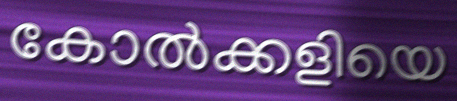
കോൽക്കളിയെ